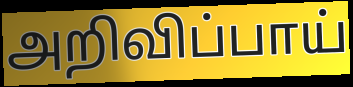
அறிவிப்பாய்